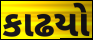
કાઢયો